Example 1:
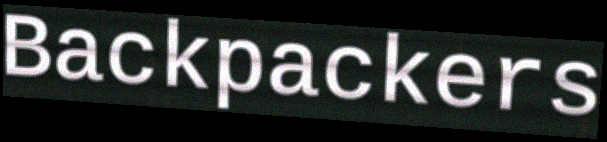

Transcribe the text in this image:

Backpackers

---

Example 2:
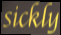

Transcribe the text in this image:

sickly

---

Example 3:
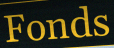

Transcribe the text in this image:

Fonds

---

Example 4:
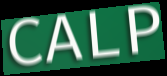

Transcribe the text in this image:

CALP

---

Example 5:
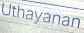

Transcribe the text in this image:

Uthayanan